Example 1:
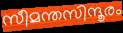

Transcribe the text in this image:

സീമന്തസിന്ദൂരം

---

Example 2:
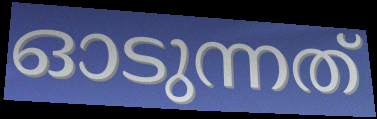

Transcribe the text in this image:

ഓടുന്നത്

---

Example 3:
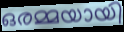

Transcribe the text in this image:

ഒരമ്മയായി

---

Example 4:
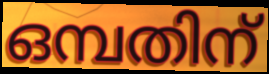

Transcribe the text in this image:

ഒമ്പതിന്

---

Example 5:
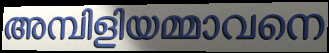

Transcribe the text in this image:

അമ്പിളിയമ്മാവനെ